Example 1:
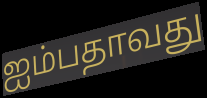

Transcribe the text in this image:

ஐம்பதாவது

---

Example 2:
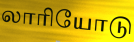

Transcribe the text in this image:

லாரியோடு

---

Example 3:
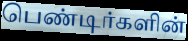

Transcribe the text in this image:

பெண்டிர்களின்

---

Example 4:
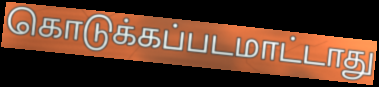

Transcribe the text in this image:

கொடுக்கப்படமாட்டாது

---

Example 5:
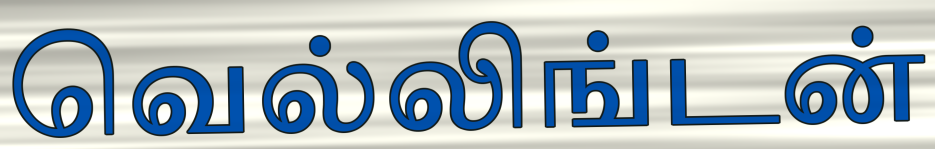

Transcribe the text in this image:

வெல்லிங்டன்